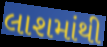
લાશમાંથી